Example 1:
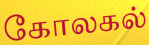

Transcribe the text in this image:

கோலகல்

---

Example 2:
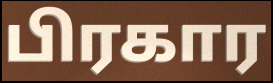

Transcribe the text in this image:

பிரகார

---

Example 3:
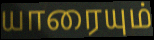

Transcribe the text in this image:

யாரையும்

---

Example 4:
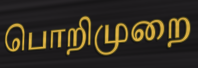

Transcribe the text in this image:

பொறிமுறை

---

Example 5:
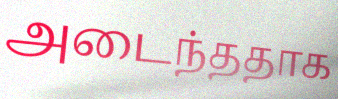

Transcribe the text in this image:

அடைந்ததாக